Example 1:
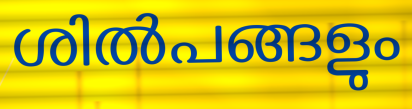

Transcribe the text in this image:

ശിൽപങ്ങളും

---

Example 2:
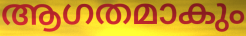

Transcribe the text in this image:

ആഗതമാകും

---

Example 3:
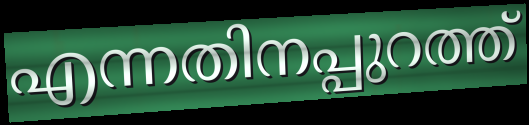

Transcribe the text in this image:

എന്നതിനപ്പുറത്ത്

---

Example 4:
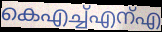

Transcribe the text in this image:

കെഎച്ച്എന്എ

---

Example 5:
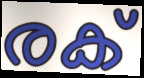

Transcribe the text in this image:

രക്